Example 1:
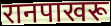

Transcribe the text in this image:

रानपाखरू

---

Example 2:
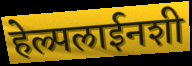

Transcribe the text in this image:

हेल्पलाईनशी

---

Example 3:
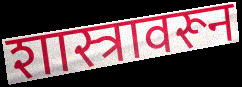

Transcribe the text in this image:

शास्त्रावरून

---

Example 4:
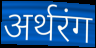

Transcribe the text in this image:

अर्थरंग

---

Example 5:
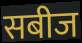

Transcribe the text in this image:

सबीज